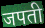
जपती